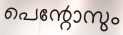
പെന്റോസും